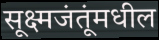
सूक्ष्मजंतूंमधील